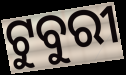
ଟୁବୁରୀ